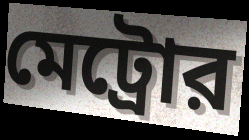
মেট্রোর